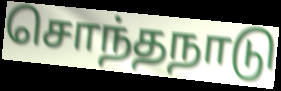
சொந்தநாடு